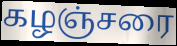
கழஞ்சரை